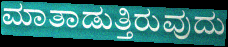
ಮಾತಾಡುತ್ತಿರುವುದು